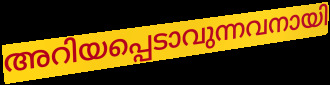
അറിയപ്പെടാവുന്നവനായി